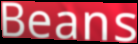
Beans